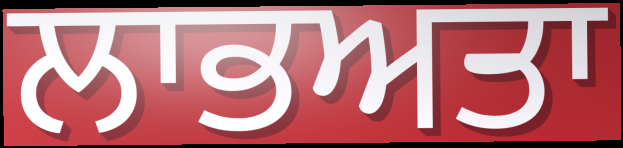
ਲਾਭਅਤਾ